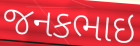
જનકભાઇ